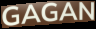
GAGAN